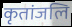
कृतांजलि